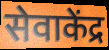
सेवाकेंद्र